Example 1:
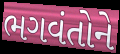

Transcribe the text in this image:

ભગવંતોને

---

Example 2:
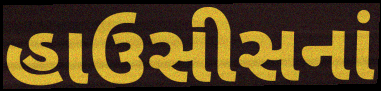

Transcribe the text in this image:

હાઉસીસનાં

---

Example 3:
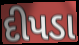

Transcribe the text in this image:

દીપડા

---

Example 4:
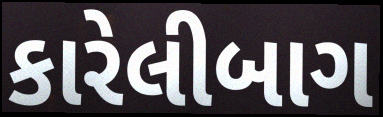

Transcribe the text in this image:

કારેલીબાગ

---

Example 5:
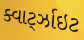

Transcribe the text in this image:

ક્વાર્ટ્ઝાઇટ